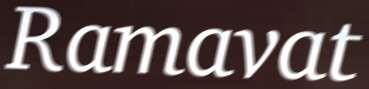
Ramavat